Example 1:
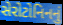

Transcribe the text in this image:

સેરોટોનિનનું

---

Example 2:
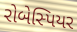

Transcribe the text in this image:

રોબેસ્પિયર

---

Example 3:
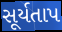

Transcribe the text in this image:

સૂર્યતાપ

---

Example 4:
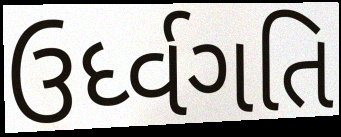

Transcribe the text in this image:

ઉર્ધ્વગતિ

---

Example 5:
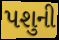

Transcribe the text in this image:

પશુની